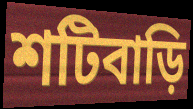
শটিবাড়ি